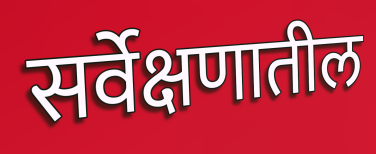
सर्वेक्षणातील